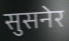
सुसनेर